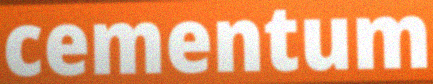
cementum